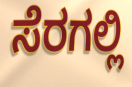
ಸೆರಗಲ್ಲಿ